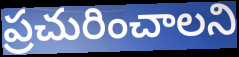
ప్రచురించాలని